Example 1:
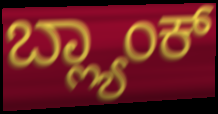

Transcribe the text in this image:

ಬ್ಲ್ಯಾಂಕ್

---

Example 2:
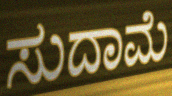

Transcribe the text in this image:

ಸುದಾಮೆ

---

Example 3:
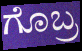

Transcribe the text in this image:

ಗೊಬ್ರ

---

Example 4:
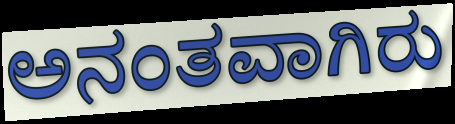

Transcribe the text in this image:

ಅನಂತವಾಗಿರು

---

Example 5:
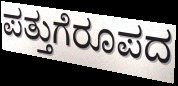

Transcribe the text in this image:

ಪತ್ತುಗೆರೂಪದ